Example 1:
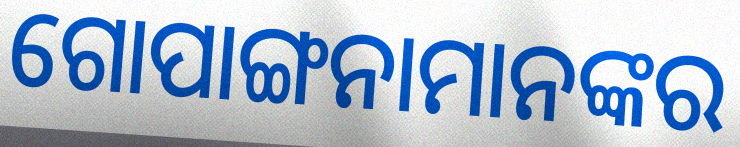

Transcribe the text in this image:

ଗୋପାଙ୍ଗନାମାନଙ୍କର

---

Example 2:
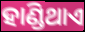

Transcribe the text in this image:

ହାଣ୍ଡିଥାଏ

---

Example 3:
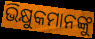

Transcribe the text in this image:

ଭିକ୍ଷୁକମାନଙ୍କୁ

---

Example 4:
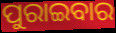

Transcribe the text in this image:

ପୁରାଇବାର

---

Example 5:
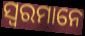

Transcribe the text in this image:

ସ୍ୱରମାନେ